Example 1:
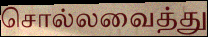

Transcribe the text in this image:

சொல்லவைத்து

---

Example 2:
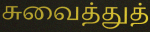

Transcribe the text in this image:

சுவைத்துத்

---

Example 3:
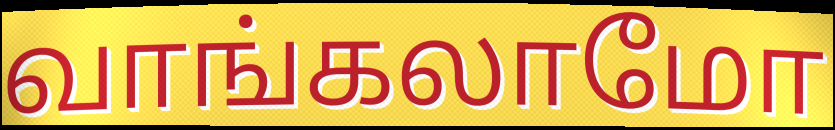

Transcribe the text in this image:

வாங்கலாமோ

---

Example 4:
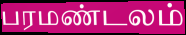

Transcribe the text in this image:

பரமண்டலம்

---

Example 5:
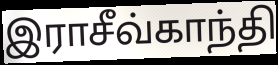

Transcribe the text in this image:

இராசீவ்காந்தி